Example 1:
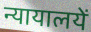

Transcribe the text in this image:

न्यायालयें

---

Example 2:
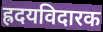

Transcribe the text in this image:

ह्रदयविदारक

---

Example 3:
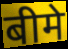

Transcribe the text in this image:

बीमे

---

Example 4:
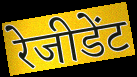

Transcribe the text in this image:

रेजीडेंट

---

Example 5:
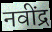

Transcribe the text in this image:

नवींद्र